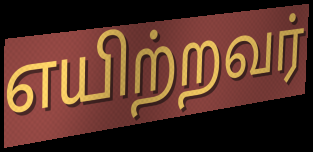
எயிற்றவர்